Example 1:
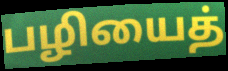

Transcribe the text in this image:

பழியைத்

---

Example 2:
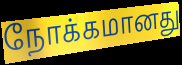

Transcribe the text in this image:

நோக்கமானது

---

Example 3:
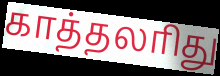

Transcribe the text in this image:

காத்தலரிது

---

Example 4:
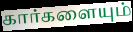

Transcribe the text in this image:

கார்களையும்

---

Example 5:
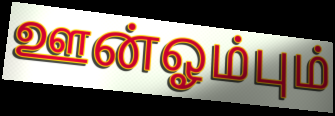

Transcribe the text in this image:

ஊன்ஓம்பும்